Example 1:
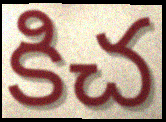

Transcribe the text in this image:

కిచ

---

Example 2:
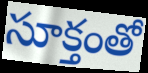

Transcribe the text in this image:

సూక్తంతో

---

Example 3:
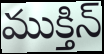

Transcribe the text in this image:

ముక్తిన్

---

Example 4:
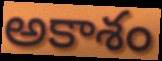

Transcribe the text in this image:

అకాశం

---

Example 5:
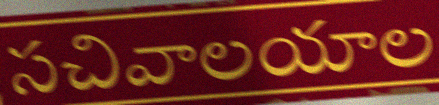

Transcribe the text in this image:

సచివాలయాల